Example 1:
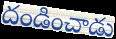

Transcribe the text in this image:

దండించాడు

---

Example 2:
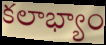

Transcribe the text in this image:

కలాభ్యాం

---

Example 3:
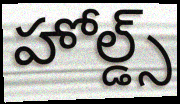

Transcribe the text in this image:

హోల్డ్స్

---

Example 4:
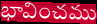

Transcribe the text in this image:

భావించము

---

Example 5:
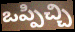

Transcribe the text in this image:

ఒప్పిచ్చి